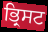
ਭ੍ਰਿਸਟ